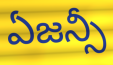
ఏజన్సీ